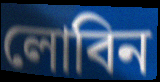
লোবিন